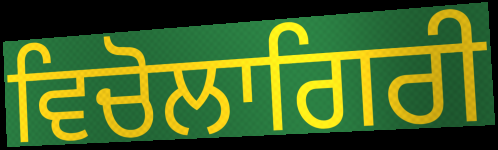
ਵਿਚੋਲਾਗਿਰੀ